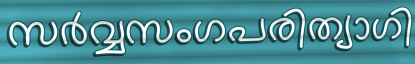
സർവ്വസംഗപരിത്യാഗി